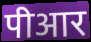
पीआर